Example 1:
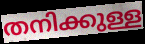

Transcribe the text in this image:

തനിക്കുള്ള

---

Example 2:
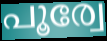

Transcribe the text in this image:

പൂര്വേ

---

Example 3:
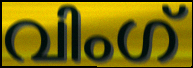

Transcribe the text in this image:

വിംഗ്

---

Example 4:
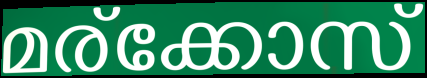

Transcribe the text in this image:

മര്ക്കോസ്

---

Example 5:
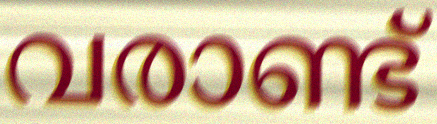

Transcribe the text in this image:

വരാണ്ട്